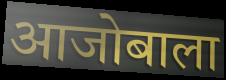
आजोबाला